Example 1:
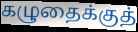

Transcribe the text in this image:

கழுதைக்குத்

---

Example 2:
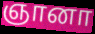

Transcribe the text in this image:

ஞானா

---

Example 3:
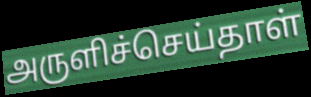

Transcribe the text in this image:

அருளிச்செய்தாள்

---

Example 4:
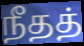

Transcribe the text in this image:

நீதத்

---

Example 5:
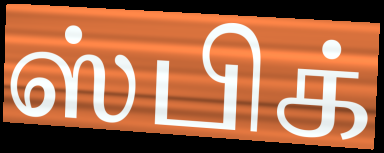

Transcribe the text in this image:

ஸ்பிக்